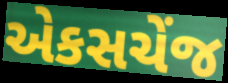
એકસચેંજ